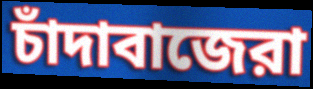
চাঁদাবাজেরা